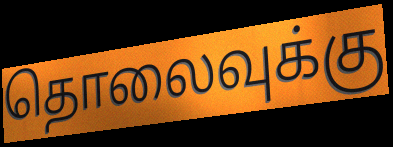
தொலைவுக்கு